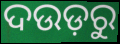
ଦଉଡ଼ରୁ